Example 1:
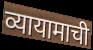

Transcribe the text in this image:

व्यायामाची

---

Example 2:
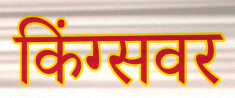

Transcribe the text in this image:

किंग्सवर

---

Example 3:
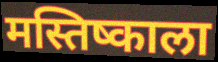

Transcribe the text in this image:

मस्तिष्काला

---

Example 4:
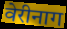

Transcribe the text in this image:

वेरीनाग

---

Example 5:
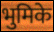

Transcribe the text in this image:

भुमिके